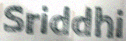
Sriddhi